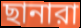
ছানারা